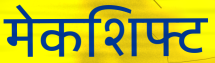
मेकशिफ्ट